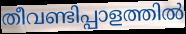
തീവണ്ടിപ്പാളത്തിൽ